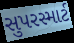
સુપરસ્માર્ટ